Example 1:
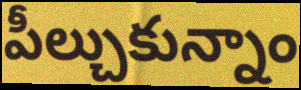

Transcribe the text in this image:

పీల్చుకున్నాం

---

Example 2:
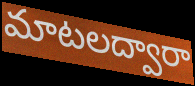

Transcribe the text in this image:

మాటలద్వారా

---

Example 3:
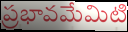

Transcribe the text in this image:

ప్రభావమేమిటి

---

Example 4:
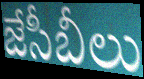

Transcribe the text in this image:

జేసీబీలు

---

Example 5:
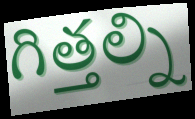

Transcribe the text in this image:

గిత్తల్ని